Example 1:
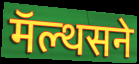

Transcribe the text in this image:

मॅल्थसने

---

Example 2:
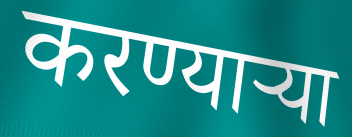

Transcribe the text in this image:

करण्यार्‍या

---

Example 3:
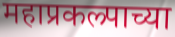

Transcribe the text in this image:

महाप्रकल्पाच्या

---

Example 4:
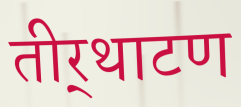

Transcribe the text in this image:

तीर्थाटण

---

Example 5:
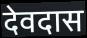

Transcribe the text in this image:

देवदास